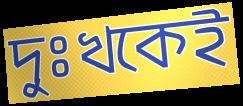
দুঃখকেই